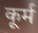
कूर्म